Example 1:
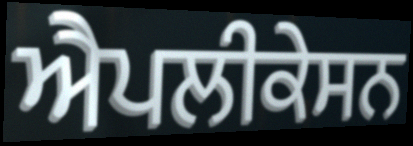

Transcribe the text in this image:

ਐਪਲੀਕੇਸਨ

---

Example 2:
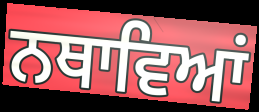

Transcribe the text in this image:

ਨਥਾਵਿਆਂ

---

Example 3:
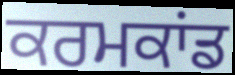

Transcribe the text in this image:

ਕਰਮਕਾਂਡ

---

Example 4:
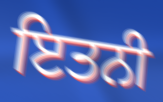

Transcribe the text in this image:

ਇਤਨੀ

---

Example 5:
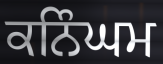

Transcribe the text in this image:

ਕਨਿੰਘਮ